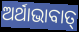
ଅର୍ଥାଭାବାତ୍